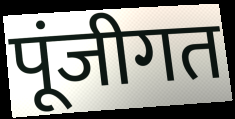
पूंजीगत